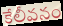
కేలీవనం